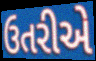
ઉતરીએ